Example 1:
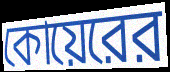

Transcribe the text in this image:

কোয়েরের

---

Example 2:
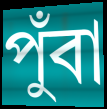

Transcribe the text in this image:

পুঁবা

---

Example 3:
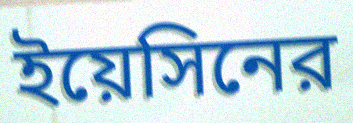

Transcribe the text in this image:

ইয়েসিনের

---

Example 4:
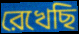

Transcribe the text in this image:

রেখেছি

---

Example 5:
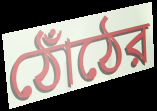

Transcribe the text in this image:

ঠোঁঠের